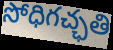
సోధిగచ్ఛతి